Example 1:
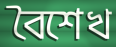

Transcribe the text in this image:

বৈশেখ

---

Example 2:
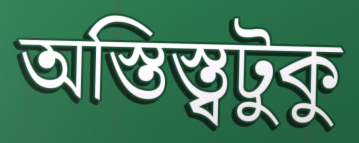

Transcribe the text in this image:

অস্তিস্ত্বটুকু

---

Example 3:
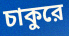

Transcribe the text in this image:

চাকুরে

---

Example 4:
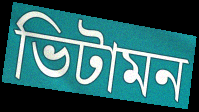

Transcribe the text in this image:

ভিটামন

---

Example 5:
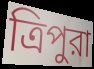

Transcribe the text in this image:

ত্রিপুরা